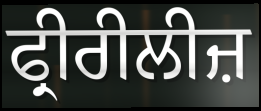
ਫ੍ਰੀਰੀਲੀਜ਼